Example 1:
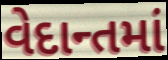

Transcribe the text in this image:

વેદાન્તમાં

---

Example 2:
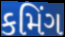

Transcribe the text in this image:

કમિંગ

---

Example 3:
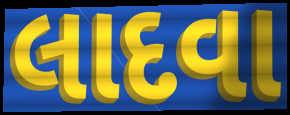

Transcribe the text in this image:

લાદવા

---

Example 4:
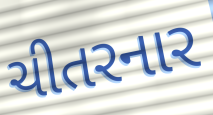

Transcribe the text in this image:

ચીતરનાર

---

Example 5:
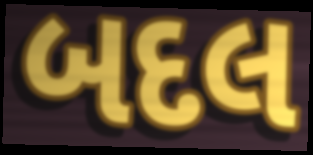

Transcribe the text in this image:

બદલ